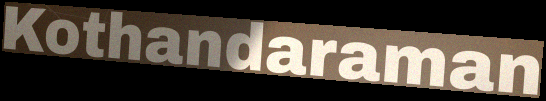
Kothandaraman